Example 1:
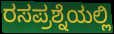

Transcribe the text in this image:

ರಸಪ್ರಶ್ನೆಯಲ್ಲಿ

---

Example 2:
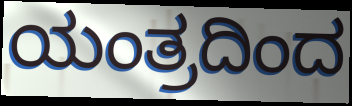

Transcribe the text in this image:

ಯಂತ್ರದಿಂದ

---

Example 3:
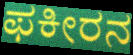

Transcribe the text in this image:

ಫಕೀರನ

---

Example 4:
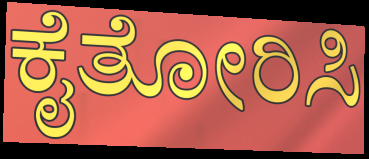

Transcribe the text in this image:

ಕೈತೋರಿಸಿ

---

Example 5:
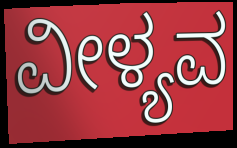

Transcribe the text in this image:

ವೀಳ್ಯವ